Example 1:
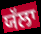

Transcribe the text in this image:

ਯੱਲਾ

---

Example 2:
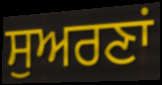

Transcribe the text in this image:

ਸੁਅਰਣਾਂ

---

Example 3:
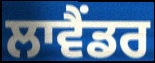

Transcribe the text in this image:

ਲਾਵੈਂਡਰ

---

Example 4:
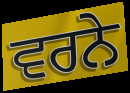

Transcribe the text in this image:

ਵਰਨੇ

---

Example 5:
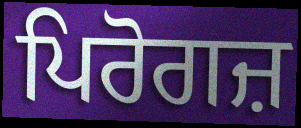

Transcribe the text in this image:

ਪਿਰੋਗਜ਼